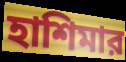
হাশিমার